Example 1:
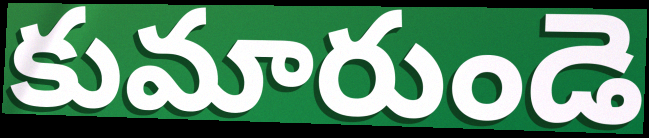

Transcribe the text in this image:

కుమారుండె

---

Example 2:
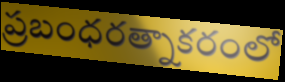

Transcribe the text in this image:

ప్రబంధరత్నాకరంలో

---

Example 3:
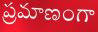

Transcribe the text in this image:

ప్రమాణంగా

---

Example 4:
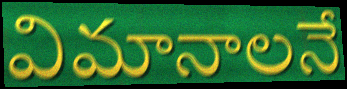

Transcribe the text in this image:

విమానాలనే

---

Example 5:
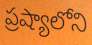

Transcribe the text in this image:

ప్రష్యాలోని